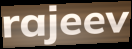
rajeev